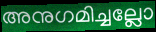
അനുഗമിച്ചല്ലോ